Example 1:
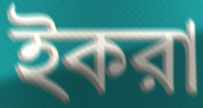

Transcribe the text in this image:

ইকরা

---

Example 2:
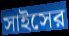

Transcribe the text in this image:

সাইসের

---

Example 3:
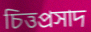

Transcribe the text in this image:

চিত্তপ্রসাদ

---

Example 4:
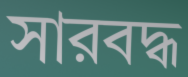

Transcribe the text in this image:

সারবদ্ধ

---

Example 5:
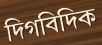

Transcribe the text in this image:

দিগবিদিক